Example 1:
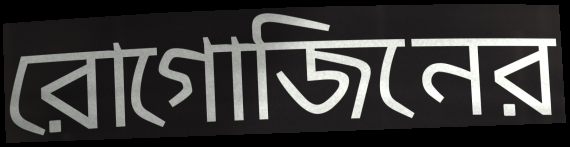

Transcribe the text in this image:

রোগোজিনের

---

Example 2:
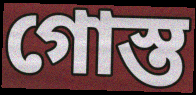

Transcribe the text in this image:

গোস্ত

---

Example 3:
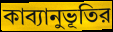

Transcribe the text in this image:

কাব্যানুভূতির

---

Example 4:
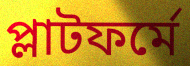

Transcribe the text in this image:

প্লাটফর্মে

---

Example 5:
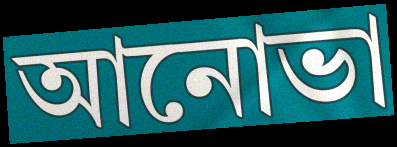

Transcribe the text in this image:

আনোভা